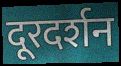
दूरदर्शन